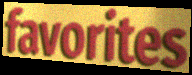
favorites